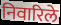
निवारिले